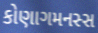
કોણાગમનસ્સ